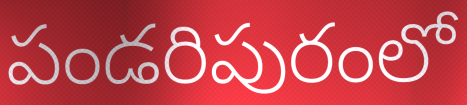
పండరిపురంలో